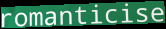
romanticise